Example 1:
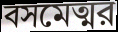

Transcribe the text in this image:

বসমেত্মর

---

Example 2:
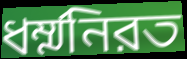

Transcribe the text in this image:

ধর্ম্মনিরত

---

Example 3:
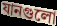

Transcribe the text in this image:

যানগুলো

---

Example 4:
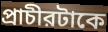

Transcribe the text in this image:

প্রাচীরটাকে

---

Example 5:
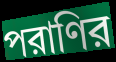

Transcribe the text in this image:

পরাণির